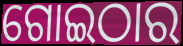
ଗୋଇଠାର